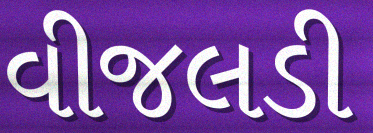
વીજલડી